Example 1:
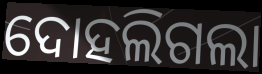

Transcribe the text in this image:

ଦୋହଲିଗଲା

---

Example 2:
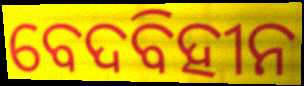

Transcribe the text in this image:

ବେଦବିହୀନ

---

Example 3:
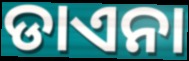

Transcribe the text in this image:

ଡାଏନା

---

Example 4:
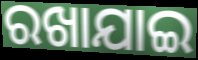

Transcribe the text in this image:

ରଖାଯାଇ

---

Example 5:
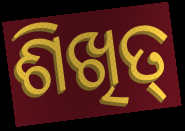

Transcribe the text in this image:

ଶିଖିତ୍